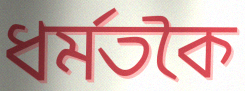
ধৰ্মতকৈ